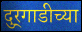
दुर्गाडीच्या